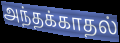
அந்தக்காதல்